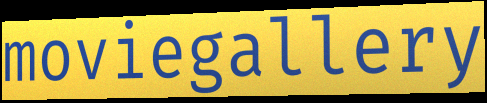
moviegallery